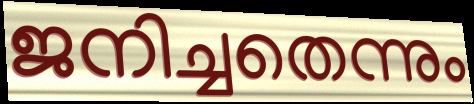
ജനിച്ചതെന്നും